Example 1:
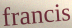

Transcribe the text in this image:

francis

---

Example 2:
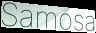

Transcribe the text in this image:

Samosa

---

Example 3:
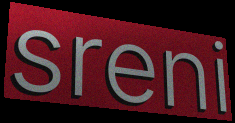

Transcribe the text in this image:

sreni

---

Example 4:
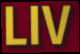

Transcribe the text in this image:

LIV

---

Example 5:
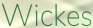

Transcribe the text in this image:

Wickes